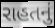
રાહતનું